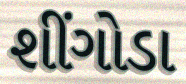
શીંગોડા